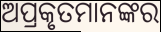
ଅପ୍ରକୃତମାନଙ୍କର